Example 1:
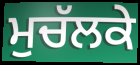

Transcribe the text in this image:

ਮੁਚੱਲਕੇ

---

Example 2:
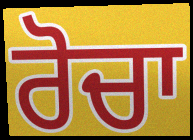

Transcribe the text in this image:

ਰੋਚਾ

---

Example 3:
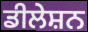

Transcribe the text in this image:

ਡੀਲੇਸ਼ਨ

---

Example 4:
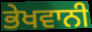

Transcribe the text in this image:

ਭੇਖਵਾਨੀ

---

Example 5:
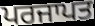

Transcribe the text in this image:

ਪਰਜਾਪਤ